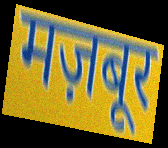
मज़बूर